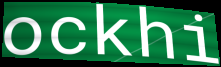
ockhi